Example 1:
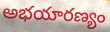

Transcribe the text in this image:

అభయారణ్యం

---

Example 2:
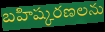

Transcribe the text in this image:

బహిష్కరణలను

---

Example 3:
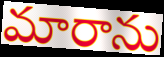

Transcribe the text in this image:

మారాను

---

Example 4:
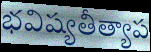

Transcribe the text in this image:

భవిష్యతీత్యాప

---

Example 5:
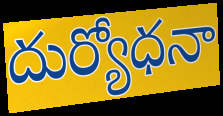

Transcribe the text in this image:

దుర్యోధనా